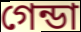
গেন্ডা